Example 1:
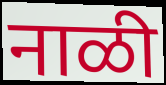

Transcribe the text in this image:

नाळी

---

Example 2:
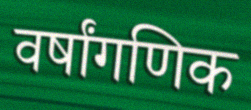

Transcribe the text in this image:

वर्षांगणिक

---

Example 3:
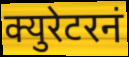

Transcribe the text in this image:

क्युरेटरनं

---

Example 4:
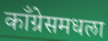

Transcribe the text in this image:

काँग्रेसमधला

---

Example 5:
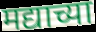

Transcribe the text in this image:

मद्याच्या